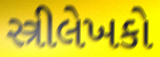
સ્ત્રીલેખકો